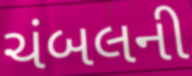
ચંબલની